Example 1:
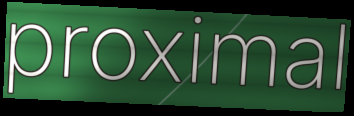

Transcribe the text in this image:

proximal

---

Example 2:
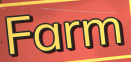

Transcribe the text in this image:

Farm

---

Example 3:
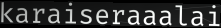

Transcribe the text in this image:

karaiseraaalai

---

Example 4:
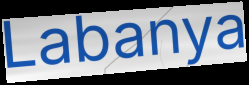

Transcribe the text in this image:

Labanya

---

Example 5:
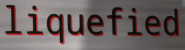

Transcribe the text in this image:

liquefied